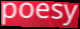
poesy